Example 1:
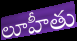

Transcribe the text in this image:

లూహీతు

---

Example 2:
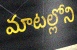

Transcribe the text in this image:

మాటల్లోని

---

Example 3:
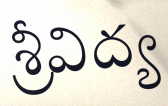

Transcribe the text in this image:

శ్రీవిద్య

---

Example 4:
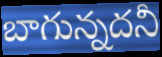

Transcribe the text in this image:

బాగున్నదనీ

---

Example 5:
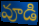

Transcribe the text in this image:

వూడి